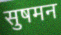
सुषमन